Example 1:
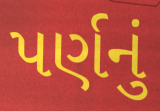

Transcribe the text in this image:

પર્ણનું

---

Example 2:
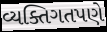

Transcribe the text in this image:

વ્યક્તિગતપણે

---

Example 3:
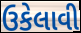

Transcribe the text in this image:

ઉકેલાવી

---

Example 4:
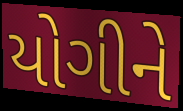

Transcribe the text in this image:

યોગીને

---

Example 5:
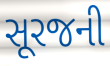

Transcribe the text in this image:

સૂરજની